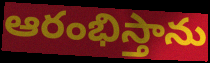
ఆరంభిస్తాను